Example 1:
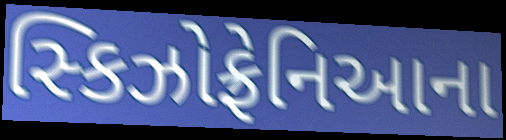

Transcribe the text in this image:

સ્કિઝોફ્રેનિઆના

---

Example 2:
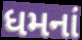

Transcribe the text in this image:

ધમનાં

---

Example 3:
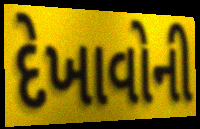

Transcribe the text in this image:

દેખાવોની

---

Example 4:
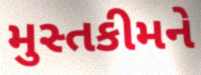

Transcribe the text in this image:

મુસ્તકીમને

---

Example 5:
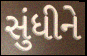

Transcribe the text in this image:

સુંધીને